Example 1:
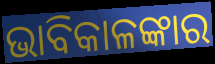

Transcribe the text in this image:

ଭାବିକାଳଙ୍କାର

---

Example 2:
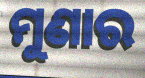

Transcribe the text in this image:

ମୁଣାର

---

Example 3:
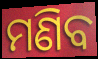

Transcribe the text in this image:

ମଣିବ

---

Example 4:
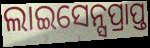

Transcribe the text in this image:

ଲାଇସେନ୍ସପ୍ରାପ୍ତ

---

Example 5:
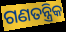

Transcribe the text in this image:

ଗଣତନ୍ତ୍ରିକ